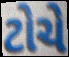
ટોચે